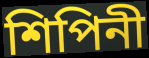
শিপিনী